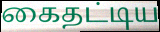
கைதட்டிய